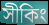
সীকিং